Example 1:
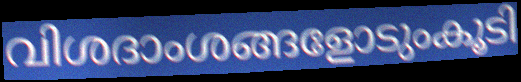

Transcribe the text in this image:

വിശദാംശങ്ങളോടുംകൂടി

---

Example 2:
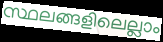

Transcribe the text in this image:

സ്ഥലങ്ങളിലെല്ലാം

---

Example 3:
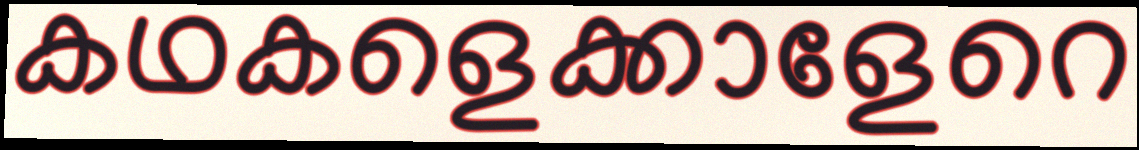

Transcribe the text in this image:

കഥകളെക്കാളേറെ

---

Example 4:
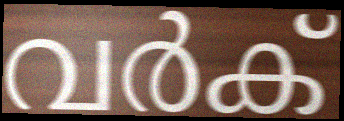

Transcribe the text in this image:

വർക്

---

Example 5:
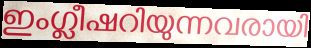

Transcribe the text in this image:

ഇംഗ്ലീഷറിയുന്നവരായി